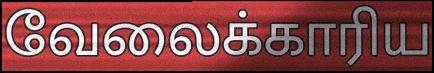
வேலைக்காரிய